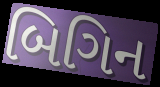
બિગિન